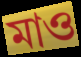
মাও